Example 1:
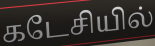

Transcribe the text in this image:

கடேசியில்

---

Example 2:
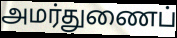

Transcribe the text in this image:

அமர்துணைப்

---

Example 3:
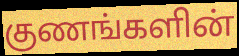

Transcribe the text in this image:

குணங்களின்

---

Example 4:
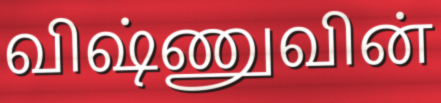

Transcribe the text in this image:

விஷ்ணுவின்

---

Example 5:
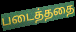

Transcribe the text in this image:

படைத்ததை